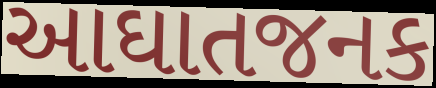
આઘાતજનક